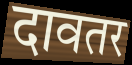
दावतर